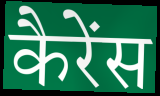
कैरेंस